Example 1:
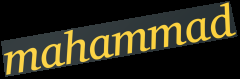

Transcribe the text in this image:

mahammad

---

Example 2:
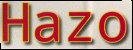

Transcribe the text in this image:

Hazo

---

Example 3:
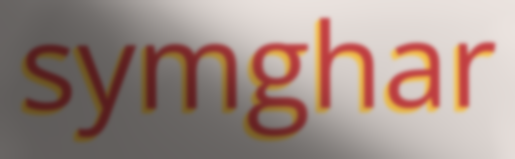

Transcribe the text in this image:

symghar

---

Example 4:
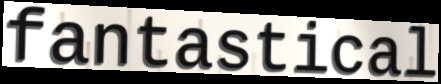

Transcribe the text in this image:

fantastical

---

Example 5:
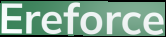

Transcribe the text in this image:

Ereforce